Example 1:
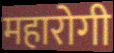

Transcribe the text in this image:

महारोगी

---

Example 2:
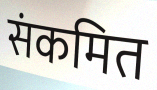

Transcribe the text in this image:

संकमित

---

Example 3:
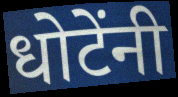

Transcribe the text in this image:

धोटेंनी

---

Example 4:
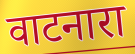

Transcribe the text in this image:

वाटनारा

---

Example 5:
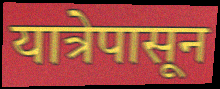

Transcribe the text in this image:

यात्रेपासून